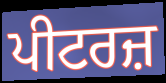
ਪੀਟਰਜ਼